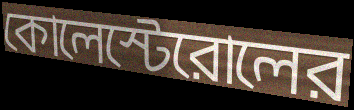
কোলেস্টেরোলের